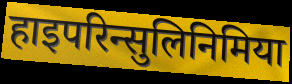
हाइपरिन्सुलिनिमिया